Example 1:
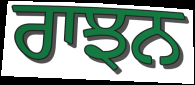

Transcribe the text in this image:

ਰਾਝਨ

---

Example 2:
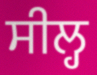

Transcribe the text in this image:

ਸੀਲ੍ਹ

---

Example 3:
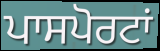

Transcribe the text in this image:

ਪਾਸਪੋਰਟਾਂ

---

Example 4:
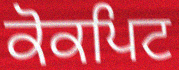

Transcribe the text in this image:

ਕੋਕਪਿਟ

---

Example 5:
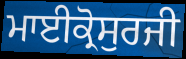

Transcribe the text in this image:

ਮਾਈਕ੍ਰੋਸੁਰਜੀ